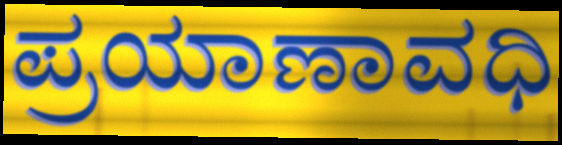
ಪ್ರಯಾಣಾವಧಿ